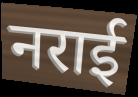
नराई